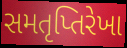
સમતૃપ્તિરેખા